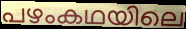
പഴംകഥയിലെ